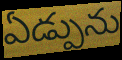
ఏడ్పును